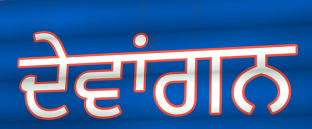
ਦੇਵਾਂਗਨ